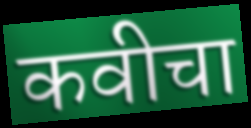
कवीचा